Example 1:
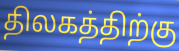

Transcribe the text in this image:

திலகத்திற்கு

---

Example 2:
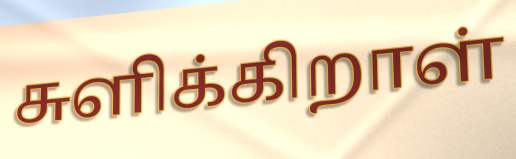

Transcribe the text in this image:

சுளிக்கிறாள்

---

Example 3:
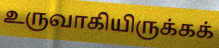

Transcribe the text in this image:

உருவாகியிருக்கக்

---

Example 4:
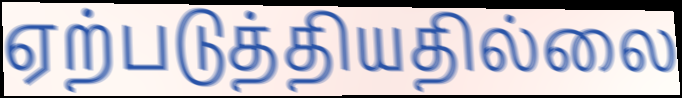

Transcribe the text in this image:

ஏற்படுத்தியதில்லை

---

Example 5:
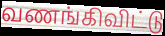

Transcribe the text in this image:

வணங்கிவிட்டு